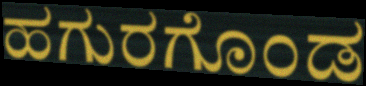
ಹಗುರಗೊಂಡ